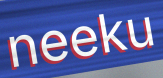
neeku